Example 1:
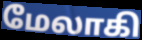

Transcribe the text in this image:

மேலாகி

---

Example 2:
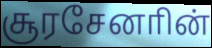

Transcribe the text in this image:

சூரசேனரின்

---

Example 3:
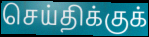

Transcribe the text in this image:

செய்திக்குக்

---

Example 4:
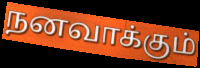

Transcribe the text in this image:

நனவாக்கும்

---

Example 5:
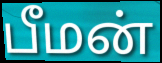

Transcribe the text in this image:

பீமன்